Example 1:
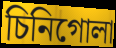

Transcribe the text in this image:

চিনিগোলা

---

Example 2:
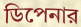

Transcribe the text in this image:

ডিপেনার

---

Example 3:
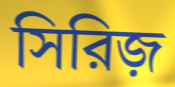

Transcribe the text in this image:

সিরিজ়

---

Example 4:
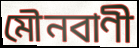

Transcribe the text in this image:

মৌনবাণী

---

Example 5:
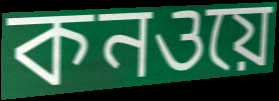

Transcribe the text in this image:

কনওয়ে